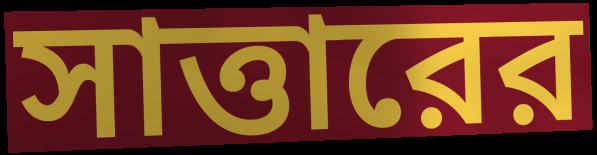
সাত্তারের